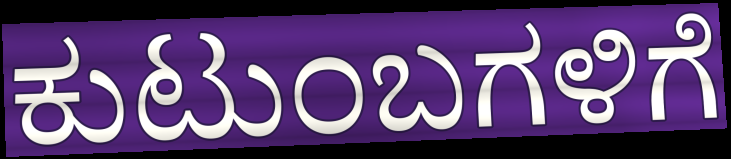
ಕುಟುಂಬಗಳಿಗೆ